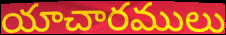
యాచారములు